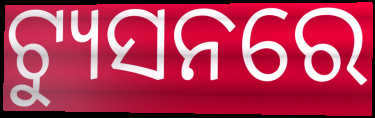
ଟ୍ୟୁସନରେ